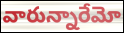
వారున్నారేమో